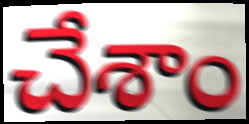
చేశాం